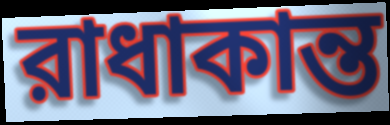
রাধাকান্ত